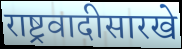
राष्ट्रवादीसारखे